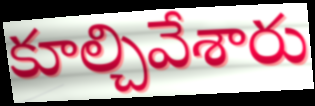
కూల్చివేశారు